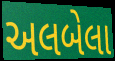
અલબેલા